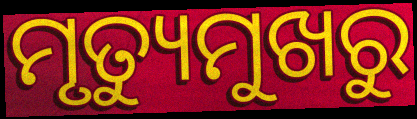
ମୃତ୍ୟୁମୁଖରୁ